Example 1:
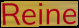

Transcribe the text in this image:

Reine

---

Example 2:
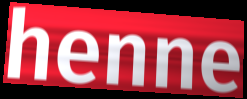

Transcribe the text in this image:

henne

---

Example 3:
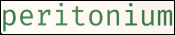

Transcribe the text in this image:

peritonium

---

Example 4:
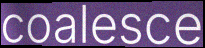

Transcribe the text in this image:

coalesce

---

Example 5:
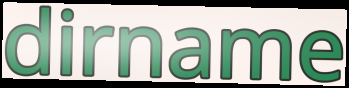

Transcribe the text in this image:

dirname